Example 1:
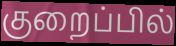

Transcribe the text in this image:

குறைப்பில்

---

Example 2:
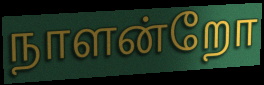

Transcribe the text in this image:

நாளன்றோ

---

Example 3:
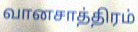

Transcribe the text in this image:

வானசாத்திரம்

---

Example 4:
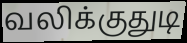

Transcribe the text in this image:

வலிக்குதுடி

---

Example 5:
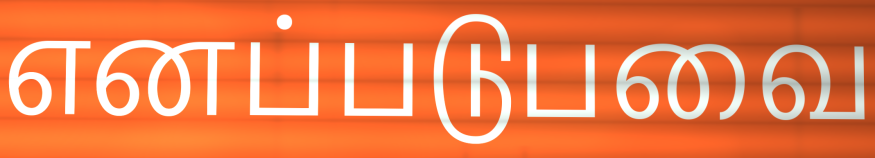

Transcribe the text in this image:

எனப்படுபவை